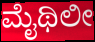
ಮೈಥಿಲೀ